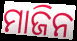
ମାଜିନ